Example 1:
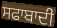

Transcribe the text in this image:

ਸਫਾਬਾਦੀ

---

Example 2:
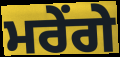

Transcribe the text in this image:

ਮਰੇਂਗੇ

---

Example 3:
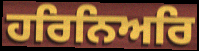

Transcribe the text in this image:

ਹਰਿਨਿਅਰਿ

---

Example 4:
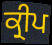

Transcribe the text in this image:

ਕ੍ਰੀਪ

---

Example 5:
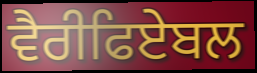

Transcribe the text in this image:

ਵੈਰੀਫਿਏਬਲ